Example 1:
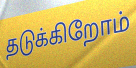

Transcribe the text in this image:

தடுக்கிறோம்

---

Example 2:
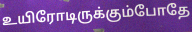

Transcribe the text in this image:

உயிரோடிருக்கும்போதே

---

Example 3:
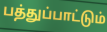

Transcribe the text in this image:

பத்துப்பாட்டும்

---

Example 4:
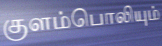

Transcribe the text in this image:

குளம்பொலியும்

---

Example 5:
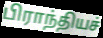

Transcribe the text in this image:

பிராந்தியச்